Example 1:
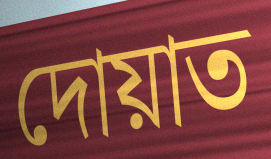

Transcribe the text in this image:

দোয়াত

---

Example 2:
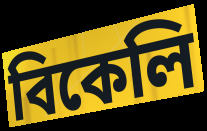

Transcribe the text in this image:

বিকেলি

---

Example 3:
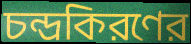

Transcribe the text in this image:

চন্দ্রকিরণের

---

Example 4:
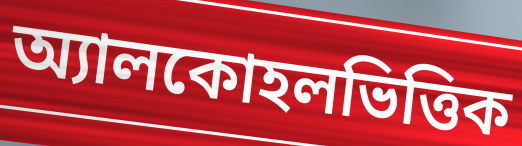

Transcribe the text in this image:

অ্যালকোহলভিত্তিক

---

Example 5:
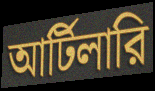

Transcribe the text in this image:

আর্টিলারি